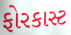
ફોરકાસ્ટ